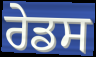
ਰੇਡਸ